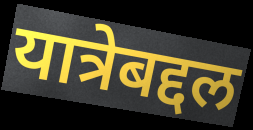
यात्रेबद्दल